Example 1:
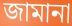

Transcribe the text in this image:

জামানা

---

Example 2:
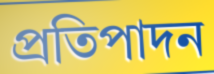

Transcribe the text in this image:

প্ৰতিপাদন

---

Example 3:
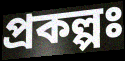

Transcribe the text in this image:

প্ৰকল্পঃ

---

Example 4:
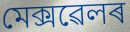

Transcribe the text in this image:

মেক্সৱেলৰ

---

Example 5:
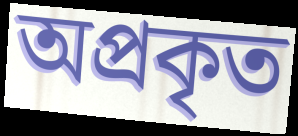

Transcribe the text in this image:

অপ্ৰকৃত